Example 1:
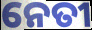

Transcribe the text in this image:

ନେତୀ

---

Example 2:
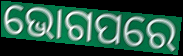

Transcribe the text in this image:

ଭୋଗପରେ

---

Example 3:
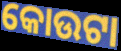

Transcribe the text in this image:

କୋଉଟା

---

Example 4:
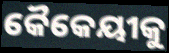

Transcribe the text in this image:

କୈକେୟୀକୁ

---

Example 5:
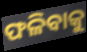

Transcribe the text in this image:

ଫଳିବାକୁ